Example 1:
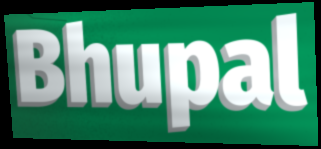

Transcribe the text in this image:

Bhupal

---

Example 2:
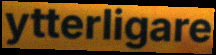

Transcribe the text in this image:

ytterligare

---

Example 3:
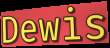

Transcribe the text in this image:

Dewis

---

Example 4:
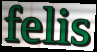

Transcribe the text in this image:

felis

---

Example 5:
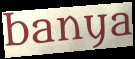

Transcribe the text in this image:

banya